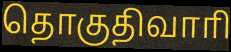
தொகுதிவாரி